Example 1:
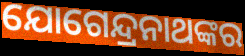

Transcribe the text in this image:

ଯୋଗେନ୍ଦ୍ରନାଥଙ୍କର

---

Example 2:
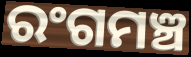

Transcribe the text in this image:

ରଂଗମଞ୍ଚ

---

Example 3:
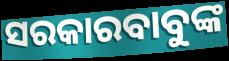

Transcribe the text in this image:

ସରକାରବାବୁଙ୍କ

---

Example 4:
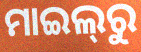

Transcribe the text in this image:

ମାଇଲ୍‌ରୁ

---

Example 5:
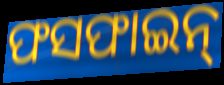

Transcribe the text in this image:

ଫସଫାଇନ୍